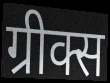
ग्रीक्स